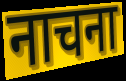
नाचना